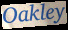
Oakley